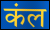
कंल